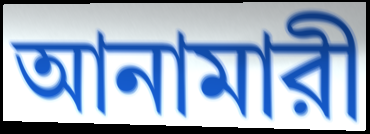
আনামারী